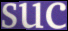
suc